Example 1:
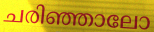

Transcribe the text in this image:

ചരിഞ്ഞാലോ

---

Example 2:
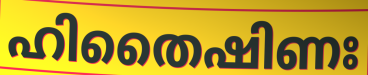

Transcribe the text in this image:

ഹിതൈഷിണഃ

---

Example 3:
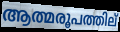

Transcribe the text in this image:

ആത്മരൂപത്തില്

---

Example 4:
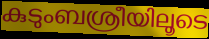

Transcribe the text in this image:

കുടുംബശ്രീയിലൂടെ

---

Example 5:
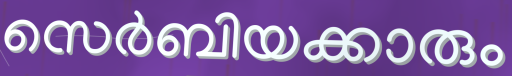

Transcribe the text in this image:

സെർബിയക്കാരും